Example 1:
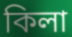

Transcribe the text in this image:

কিলা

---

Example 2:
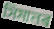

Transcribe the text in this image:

সিমানৰ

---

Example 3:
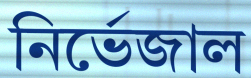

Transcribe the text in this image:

নিৰ্ভেজাল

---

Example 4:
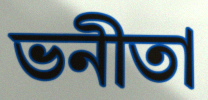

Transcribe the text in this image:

ভনীতা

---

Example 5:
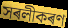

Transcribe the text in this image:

সৰলীকৰণ